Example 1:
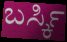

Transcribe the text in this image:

ಬರ್ಸ್ಕಿ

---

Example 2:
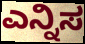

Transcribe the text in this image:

ಎನ್ನಿಸ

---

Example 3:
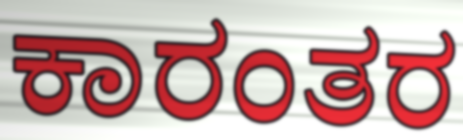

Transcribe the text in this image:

ಕಾರಂತರ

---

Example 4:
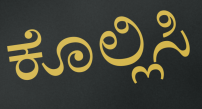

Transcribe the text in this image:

ಕೊಲ್ಲಿಸಿ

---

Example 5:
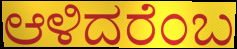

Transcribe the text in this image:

ಆಳಿದರೆಂಬ